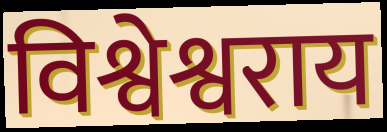
विश्वेश्वराय